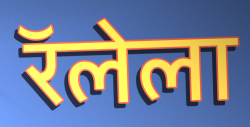
रॅलेला